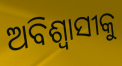
ଅବିଶ୍ୱାସୀକୁ